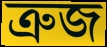
ত্রুজ